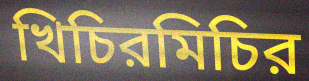
খিচিরমিচির